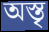
অস্তৃ